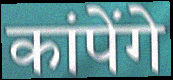
कांपेंगे